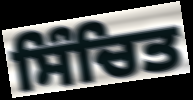
ਸਿੰਚਿਤ